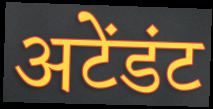
अटेंडंट